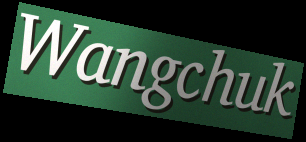
Wangchuk